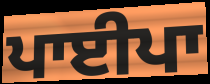
ਪਾਈਪਾ